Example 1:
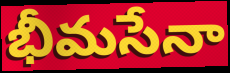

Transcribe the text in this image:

భీమసేనా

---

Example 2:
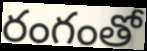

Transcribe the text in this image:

రంగంతో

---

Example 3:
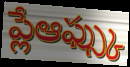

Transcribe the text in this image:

ప్లేఆఫ్స్కు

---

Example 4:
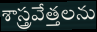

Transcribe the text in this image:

శాస్త్రవేత్తలను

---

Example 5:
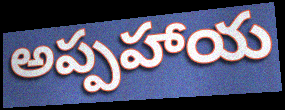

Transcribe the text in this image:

అప్పహాయ